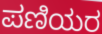
ಪಣಿಯರ